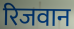
रिजवान